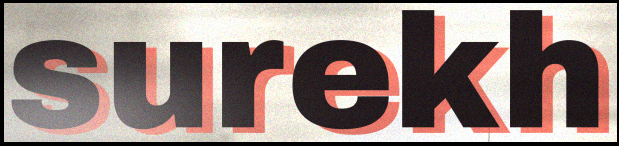
surekh